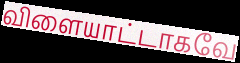
விளையாட்டாகவே